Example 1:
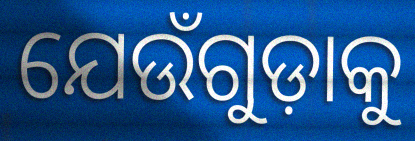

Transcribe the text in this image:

ଯେଉଁଗୁଡ଼ାକୁ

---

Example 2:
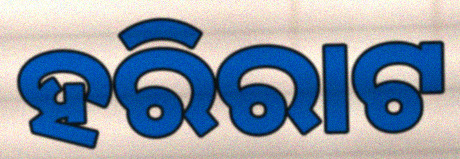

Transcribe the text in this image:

ହରିରାଟ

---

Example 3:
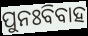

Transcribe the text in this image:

ପୁନଃବିବାହ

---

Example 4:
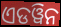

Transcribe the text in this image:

ଏଡୱିନ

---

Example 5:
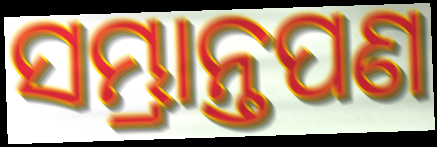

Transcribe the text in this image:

ସମ୍ଭ୍ରାନ୍ତପଣ